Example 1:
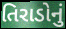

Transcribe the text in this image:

તિરાડોનું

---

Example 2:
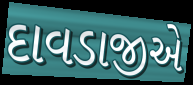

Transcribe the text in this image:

દાવડાજીએ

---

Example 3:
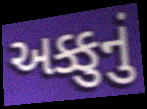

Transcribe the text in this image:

અક્કુનું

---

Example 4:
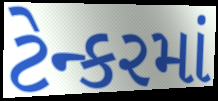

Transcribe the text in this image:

ટેન્કરમાં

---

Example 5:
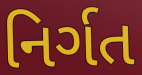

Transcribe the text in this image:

નિર્ગત